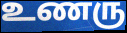
உணரு